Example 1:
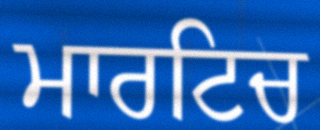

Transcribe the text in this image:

ਮਾਰਟਿਚ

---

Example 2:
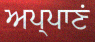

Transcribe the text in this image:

ਅਪ੍ਪਾਣਂ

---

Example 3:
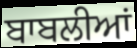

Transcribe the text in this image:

ਬਾਬਲੀਆਂ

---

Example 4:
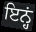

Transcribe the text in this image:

ਇਨ੍ਹਂ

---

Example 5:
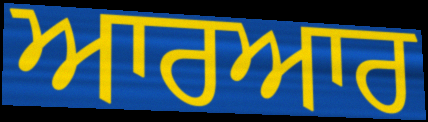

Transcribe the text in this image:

ਆਰਆਰ